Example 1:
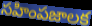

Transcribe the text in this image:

సహింపజాలక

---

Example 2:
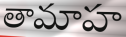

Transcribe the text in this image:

తామాహ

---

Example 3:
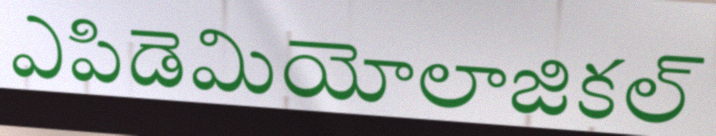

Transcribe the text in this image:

ఎపిడెమియోలాజికల్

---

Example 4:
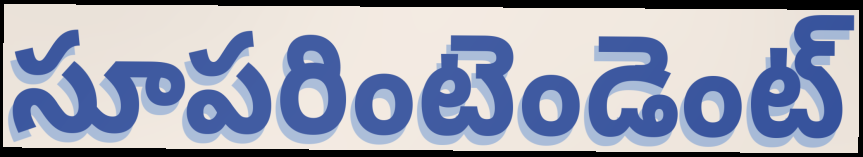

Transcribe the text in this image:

సూపరింటెండెంట్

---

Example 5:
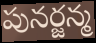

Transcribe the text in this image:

పునర్జన్మ